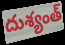
దుశ్యంత్